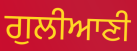
ਗੁਲੀਆਣੀ